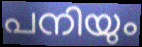
പനിയും